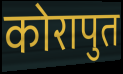
कोरापुत